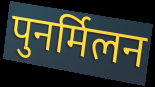
पुनर्मिलन